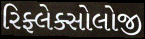
રિફ્લેક્સોલોજી